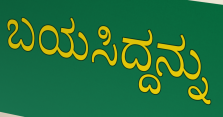
ಬಯಸಿದ್ದನ್ನು